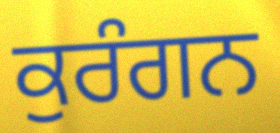
ਕੁਰੰਗਨ